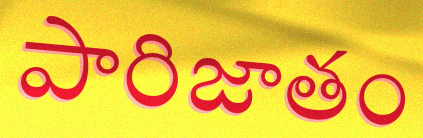
పారిజాతం